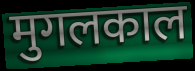
मुगलकाल